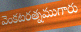
వెంకటరత్నముగారు